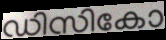
ഡിസികോ